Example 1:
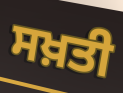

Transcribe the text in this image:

ਸਖ਼ਤੀ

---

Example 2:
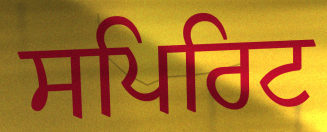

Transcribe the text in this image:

ਸਪਿਰਿਟ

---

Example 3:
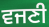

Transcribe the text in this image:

ਵਜਣੀ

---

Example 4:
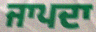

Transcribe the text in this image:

ਜਾਪਦਾ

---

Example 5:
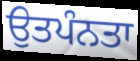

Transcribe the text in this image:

ਉਤਪੰਨਤਾ